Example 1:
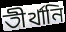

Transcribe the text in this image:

তীর্থানি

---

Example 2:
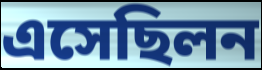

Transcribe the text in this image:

এসেছিলন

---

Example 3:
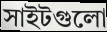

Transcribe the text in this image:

সাইটগুলো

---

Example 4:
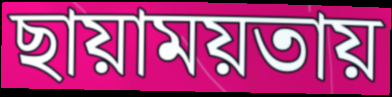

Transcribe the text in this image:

ছায়াময়তায়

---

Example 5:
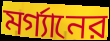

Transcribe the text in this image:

মর্গ্যানের